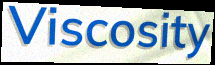
Viscosity